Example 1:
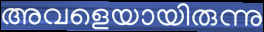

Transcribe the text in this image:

അവളെയായിരുന്നു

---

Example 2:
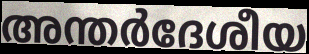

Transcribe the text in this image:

അന്തർദേശീയ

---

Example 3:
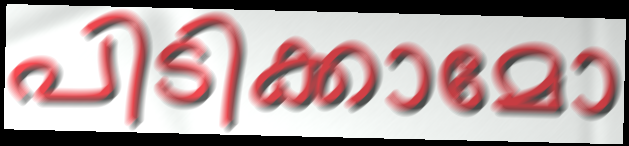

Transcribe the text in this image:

പിടിക്കാമോ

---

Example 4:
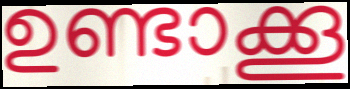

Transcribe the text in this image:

ഉണ്ടാക്കൂ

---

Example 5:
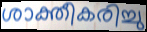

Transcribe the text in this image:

ശാക്തീകരിച്ചു